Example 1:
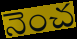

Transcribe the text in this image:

నెంచ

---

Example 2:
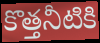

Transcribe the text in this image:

కొత్తనీటికి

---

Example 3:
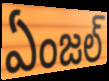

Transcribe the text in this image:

ఏంజల్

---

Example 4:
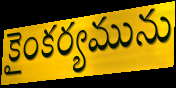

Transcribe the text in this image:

కైంకర్యమును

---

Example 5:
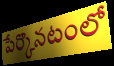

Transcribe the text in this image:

పేర్కొనటంలో